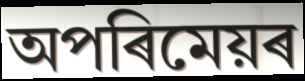
অপৰিমেয়ৰ